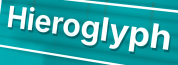
Hieroglyph